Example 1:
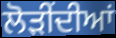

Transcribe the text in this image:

ਲੋੜੀਂਦੀਆਂ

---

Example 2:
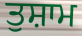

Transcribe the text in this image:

ਤੁਸ਼ਾਮ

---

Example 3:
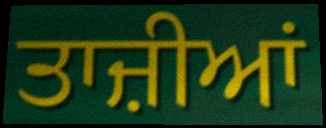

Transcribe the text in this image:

ਤਾਜ਼ੀਆਂ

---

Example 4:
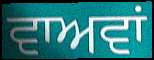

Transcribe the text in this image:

ਵਾਅਵਾਂ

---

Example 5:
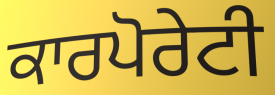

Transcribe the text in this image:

ਕਾਰਪੋਰੇਟੀ